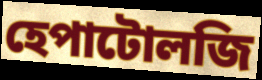
হেপাটোলজি